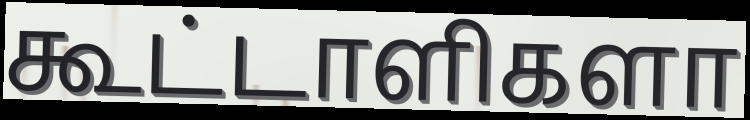
கூட்டாளிகளா